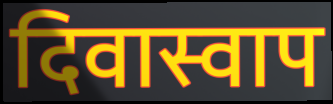
दिवास्वाप